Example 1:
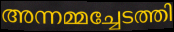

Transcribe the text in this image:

അന്നമ്മച്ചേടത്തി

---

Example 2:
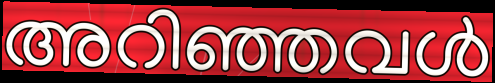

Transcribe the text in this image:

അറിഞ്ഞവൾ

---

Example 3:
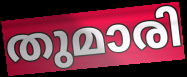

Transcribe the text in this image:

തുമാരി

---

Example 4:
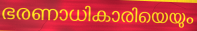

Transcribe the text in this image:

ഭരണാധികാരിയെയും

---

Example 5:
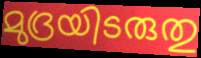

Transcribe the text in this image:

മുദ്രയിടരുതു